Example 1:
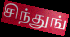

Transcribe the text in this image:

சிந்துங்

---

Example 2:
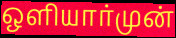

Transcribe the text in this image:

ஒளியார்முன்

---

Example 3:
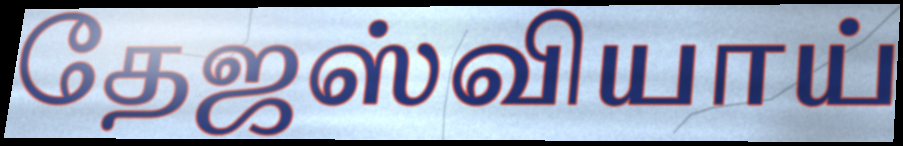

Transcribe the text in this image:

தேஜஸ்வியாய்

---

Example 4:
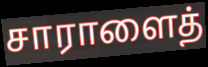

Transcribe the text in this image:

சாராளைத்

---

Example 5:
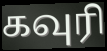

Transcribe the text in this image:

கவுரி